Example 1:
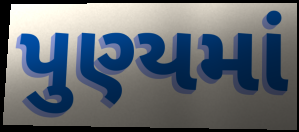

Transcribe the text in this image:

પુણ્યમાં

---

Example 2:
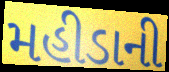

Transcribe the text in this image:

મહીડાની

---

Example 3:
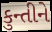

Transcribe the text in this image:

કુન્તીને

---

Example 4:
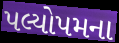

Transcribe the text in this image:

પલ્યોપમના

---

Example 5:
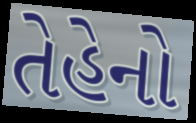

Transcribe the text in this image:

તેહેનો